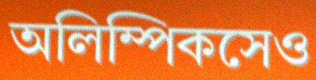
অলিম্পিকসেও